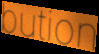
bution